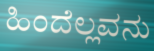
ಹಿಂದೆಲ್ಲವನು